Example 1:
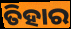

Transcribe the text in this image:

ତିହାର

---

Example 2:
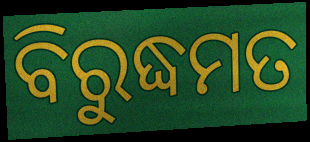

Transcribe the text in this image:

ବିରୁଦ୍ଧମତ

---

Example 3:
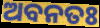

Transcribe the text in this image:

ଅବନତଃ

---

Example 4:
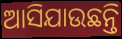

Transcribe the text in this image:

ଆସିଯାଉଛନ୍ତି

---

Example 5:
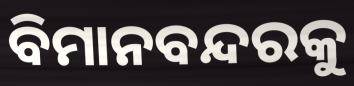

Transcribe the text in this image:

ବିମାନବନ୍ଦରକୁ